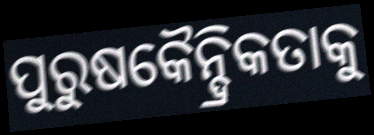
ପୁରୁଷକୈନ୍ଦ୍ରିକତାକୁ